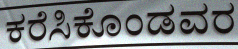
ಕರೆಸಿಕೊಂಡವರ